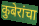
कुबेरांचा